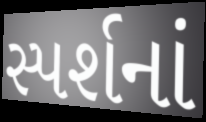
સ્પર્શનાં